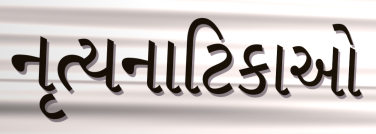
નૃત્યનાટિકાઓ